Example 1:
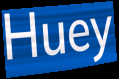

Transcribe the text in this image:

Huey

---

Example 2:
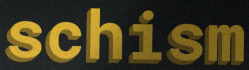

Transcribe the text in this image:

schism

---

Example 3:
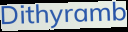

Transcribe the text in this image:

Dithyramb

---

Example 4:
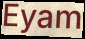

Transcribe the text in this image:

Eyam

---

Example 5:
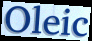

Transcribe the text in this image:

Oleic